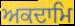
ਅਕਦਾਮਿ